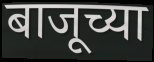
बाजूच्या